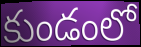
కుండంలో